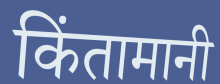
किंतामानी